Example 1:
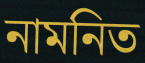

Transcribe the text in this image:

নামনিত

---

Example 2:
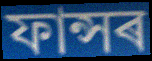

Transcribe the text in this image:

ফান্সৰ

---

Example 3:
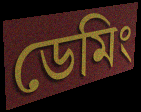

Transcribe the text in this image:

ডেমিং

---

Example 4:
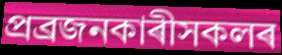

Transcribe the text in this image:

প্ৰব্ৰজনকাৰীসকলৰ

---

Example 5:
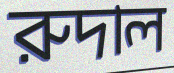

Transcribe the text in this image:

ৰুদাল